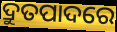
ଦ୍ରୁତପାଦରେ